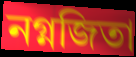
নগ্নজিতা